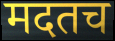
मदतच